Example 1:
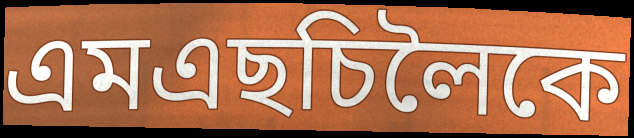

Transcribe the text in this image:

এমএছচিলৈকে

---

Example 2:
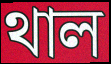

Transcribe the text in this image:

থাল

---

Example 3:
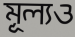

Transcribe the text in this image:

মূল্যও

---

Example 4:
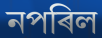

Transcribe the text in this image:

নপৰিল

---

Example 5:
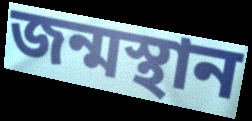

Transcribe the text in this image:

জন্মস্থান